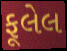
ફૂલેલ